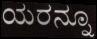
ಯರನ್ನೂ